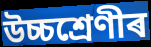
উচ্চশ্ৰেণীৰ